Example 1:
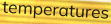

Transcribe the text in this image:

temperatures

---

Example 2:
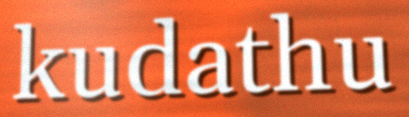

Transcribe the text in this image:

kudathu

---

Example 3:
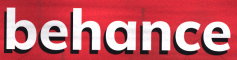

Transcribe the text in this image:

behance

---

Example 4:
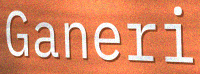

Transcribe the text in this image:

Ganeri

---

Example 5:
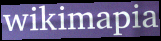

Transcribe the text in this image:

wikimapia